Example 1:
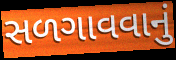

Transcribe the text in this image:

સળગાવવાનું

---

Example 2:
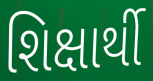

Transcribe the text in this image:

શિક્ષાર્થી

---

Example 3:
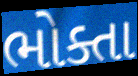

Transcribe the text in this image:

ભોક્તા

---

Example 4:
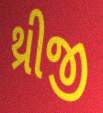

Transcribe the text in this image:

થ્રીજી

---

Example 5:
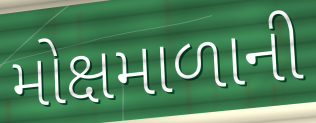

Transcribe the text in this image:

મોક્ષમાળાની